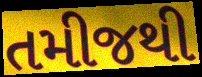
તમીજથી